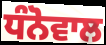
ਧੰਨੋਵਾਲ